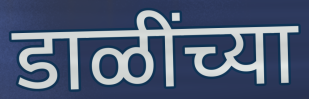
डाळींच्या